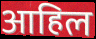
आहिल